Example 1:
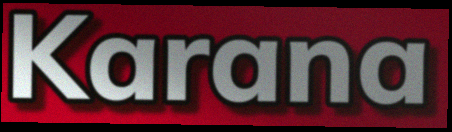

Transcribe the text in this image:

Karana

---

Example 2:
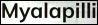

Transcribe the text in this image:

Myalapilli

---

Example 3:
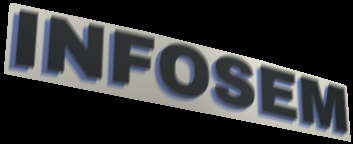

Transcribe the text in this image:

INFOSEM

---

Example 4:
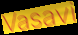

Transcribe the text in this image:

Vasavi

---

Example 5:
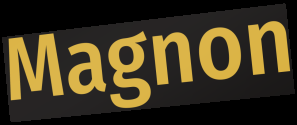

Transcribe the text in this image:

Magnon